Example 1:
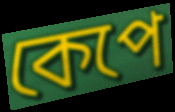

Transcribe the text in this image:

কেপে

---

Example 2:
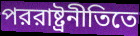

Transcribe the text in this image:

পররাষ্ট্রনীতিতে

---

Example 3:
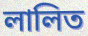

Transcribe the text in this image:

লালিত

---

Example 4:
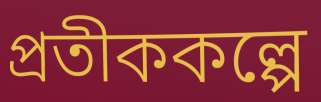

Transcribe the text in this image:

প্রতীককল্পে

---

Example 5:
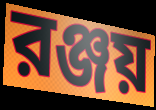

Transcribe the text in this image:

রঞ্জয়